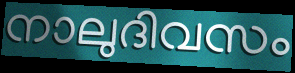
നാലുദിവസം